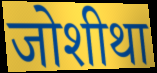
जोशीथा